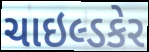
ચાઇલ્ડકેર